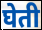
घेती